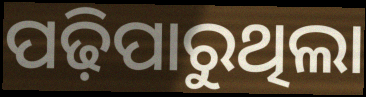
ପଢ଼ିପାରୁଥିଲା